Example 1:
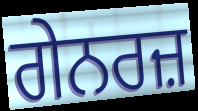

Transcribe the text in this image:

ਗੇਨਰਜ਼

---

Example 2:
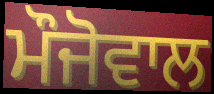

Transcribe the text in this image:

ਮੌਜੋਵਾਲ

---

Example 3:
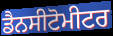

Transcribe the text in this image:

ਡੈਨਸੀਟੋਮੀਟਰ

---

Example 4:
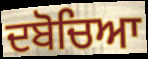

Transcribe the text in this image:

ਦਬੋਚਿਆ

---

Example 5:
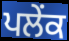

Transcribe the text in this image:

ਪਲੇਂਕ